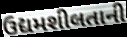
ઉદ્યમશીલતાની